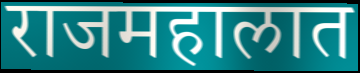
राजमहालात